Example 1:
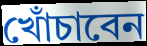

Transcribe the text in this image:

খোঁচাবেন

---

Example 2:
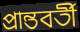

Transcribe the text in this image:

প্রান্তবর্তী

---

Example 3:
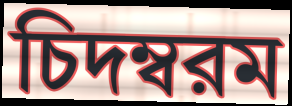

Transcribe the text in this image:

চিদম্বরম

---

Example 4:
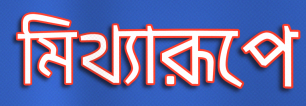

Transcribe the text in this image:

মিথ্যারূপে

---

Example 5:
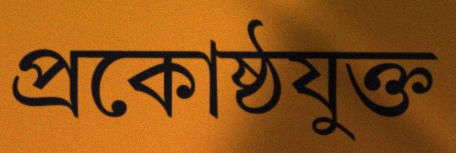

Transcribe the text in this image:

প্রকোষ্ঠযুক্ত